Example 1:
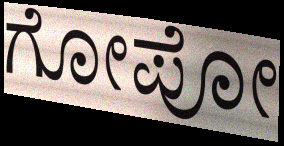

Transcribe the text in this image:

ಗೋಪೋ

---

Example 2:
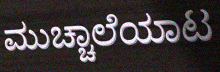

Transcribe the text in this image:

ಮುಚ್ಚಾಲೆಯಾಟ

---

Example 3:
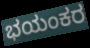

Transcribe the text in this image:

ಭಯಂಕರ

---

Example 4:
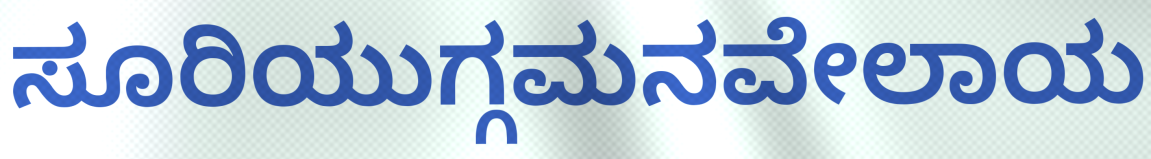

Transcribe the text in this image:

ಸೂರಿಯುಗ್ಗಮನವೇಲಾಯ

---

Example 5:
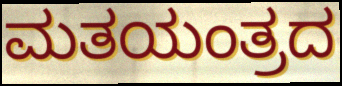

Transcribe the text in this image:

ಮತಯಂತ್ರದ